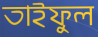
তাইফুল